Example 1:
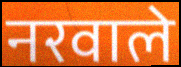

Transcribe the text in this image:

नरवाले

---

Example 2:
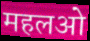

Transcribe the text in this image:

महलओ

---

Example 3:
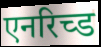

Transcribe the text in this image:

एनरिच्ड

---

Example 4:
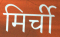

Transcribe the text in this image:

मिर्ची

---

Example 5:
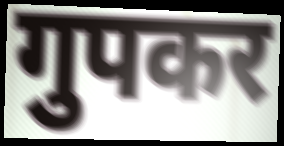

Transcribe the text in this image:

गुपकर